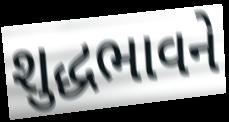
શુદ્ધભાવને